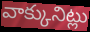
వాక్కునిట్లు